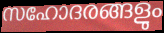
സഹോദരങ്ങളും